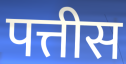
पत्तीस